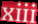
xiii